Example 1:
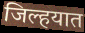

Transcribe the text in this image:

जिल्हयात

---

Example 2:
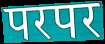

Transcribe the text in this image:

परपर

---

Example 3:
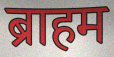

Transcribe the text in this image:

ब्राहम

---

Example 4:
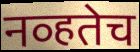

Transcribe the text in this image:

नव्हतेच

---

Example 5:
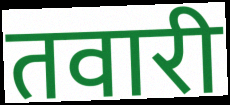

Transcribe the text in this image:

तवारी